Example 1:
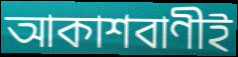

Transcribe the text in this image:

আকাশবাণীই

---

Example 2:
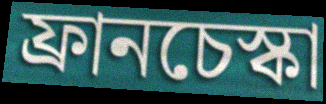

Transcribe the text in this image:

ফ্রানচেস্কা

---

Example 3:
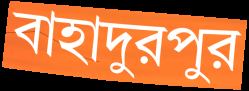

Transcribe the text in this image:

বাহাদুরপুর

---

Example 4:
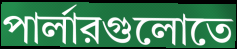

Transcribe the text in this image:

পার্লারগুলোতে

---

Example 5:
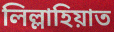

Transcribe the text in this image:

লিল্লাহিয়াত